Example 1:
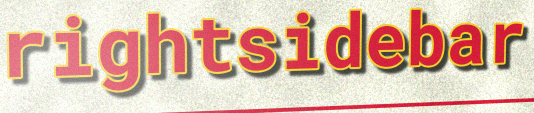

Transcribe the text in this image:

rightsidebar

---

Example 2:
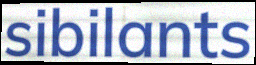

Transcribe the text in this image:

sibilants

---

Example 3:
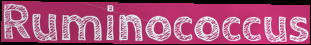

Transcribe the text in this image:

Ruminococcus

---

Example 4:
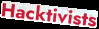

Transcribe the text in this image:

Hacktivists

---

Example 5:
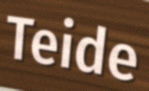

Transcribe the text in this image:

Teide